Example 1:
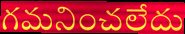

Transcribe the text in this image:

గమనించలేదు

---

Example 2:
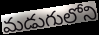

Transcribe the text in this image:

మడుగులోని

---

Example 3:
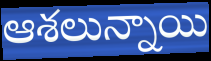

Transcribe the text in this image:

ఆశలున్నాయి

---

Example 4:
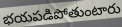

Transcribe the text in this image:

భయపడిపోతుంటారు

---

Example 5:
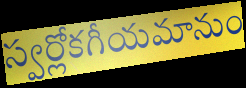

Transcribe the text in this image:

స్వర్లోకగీయమానుం